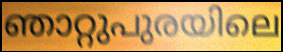
ഞാറ്റുപുരയിലെ